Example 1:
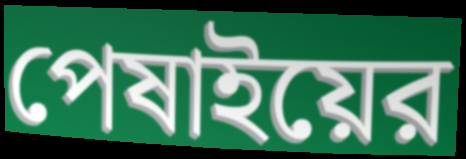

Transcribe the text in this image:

পেষাইয়ের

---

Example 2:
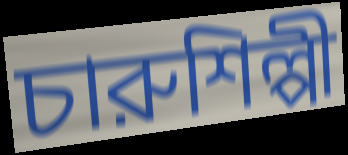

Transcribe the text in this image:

চারুশিল্পী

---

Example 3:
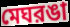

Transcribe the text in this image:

মেঘরঙা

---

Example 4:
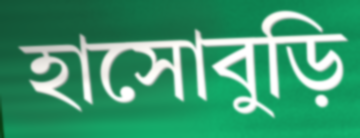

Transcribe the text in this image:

হাসোবুড়ি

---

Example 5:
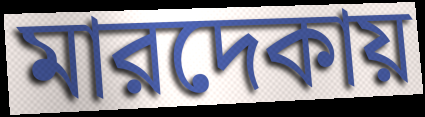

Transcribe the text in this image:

মারদেকায়